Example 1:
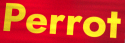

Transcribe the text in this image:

Perrot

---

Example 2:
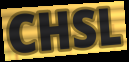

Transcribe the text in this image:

CHSL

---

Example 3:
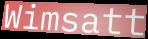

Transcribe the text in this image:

Wimsatt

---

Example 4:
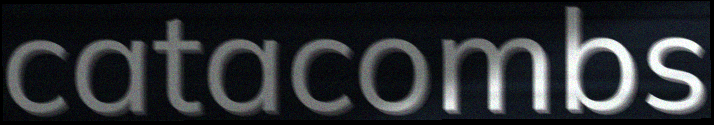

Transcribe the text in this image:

catacombs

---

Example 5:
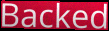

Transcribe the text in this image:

Backed